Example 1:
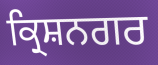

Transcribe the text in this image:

ਕ੍ਰਿਸ਼ਨਗਰ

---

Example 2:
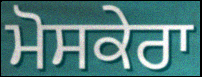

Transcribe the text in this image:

ਮੋਸਕੇਰਾ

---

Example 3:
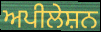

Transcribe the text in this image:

ਅਪੀਲੇਸ਼ਨ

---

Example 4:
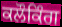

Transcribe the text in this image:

ਕਲੌਕਿੰਗ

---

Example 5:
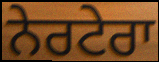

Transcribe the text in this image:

ਨੇਰਟੇਰਾ